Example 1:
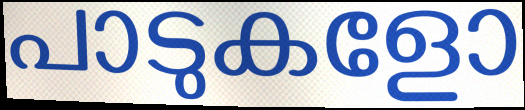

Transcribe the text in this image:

പാടുകളോ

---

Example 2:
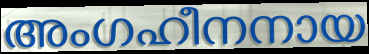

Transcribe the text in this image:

അംഗഹീനനായ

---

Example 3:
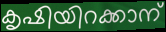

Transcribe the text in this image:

കൃഷിയിറക്കാന്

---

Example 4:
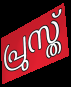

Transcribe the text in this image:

പ്രുസ്ത്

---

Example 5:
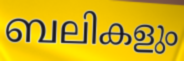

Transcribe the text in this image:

ബലികളും